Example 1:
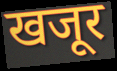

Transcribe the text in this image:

खजूर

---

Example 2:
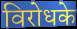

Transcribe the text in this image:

विरोधके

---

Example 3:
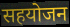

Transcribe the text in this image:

सहयोजन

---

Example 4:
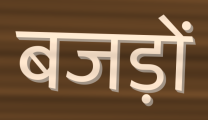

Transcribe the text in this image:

बजड़ों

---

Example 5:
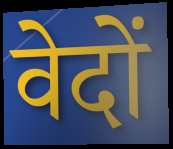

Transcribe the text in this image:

वेदों